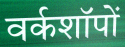
वर्कशॉपों